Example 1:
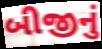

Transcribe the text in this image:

બીજીનું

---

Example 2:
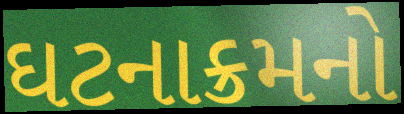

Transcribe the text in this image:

ઘટનાક્રમનો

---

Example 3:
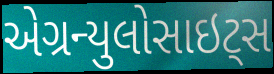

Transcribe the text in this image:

એગ્રન્યુલોસાઇટ્સ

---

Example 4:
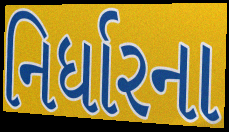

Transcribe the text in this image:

નિર્ધારના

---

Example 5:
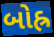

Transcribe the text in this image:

બોહ્ર